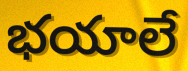
భయాలే